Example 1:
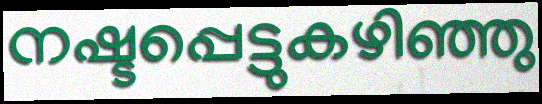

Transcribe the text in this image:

നഷ്ടപ്പെട്ടുകഴിഞ്ഞു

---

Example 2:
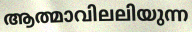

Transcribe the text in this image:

ആത്മാവിലലിയുന്ന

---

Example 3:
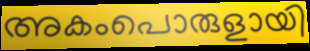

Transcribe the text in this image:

അകംപൊരുളായി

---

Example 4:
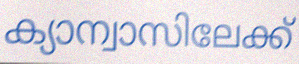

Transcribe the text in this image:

ക്യാന്വാസിലേക്ക്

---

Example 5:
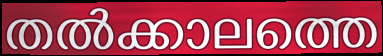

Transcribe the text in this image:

തൽക്കാലത്തെ